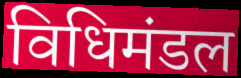
विधिमंडल